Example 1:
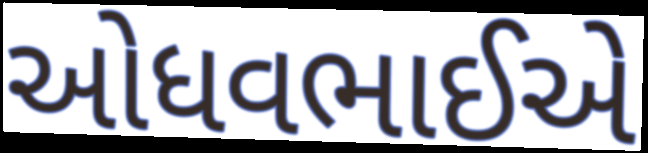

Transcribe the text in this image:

ઓધવભાઈએ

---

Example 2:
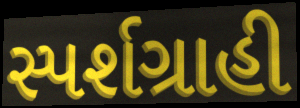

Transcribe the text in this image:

સ્પર્શગ્રાહી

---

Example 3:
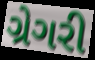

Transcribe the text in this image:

ગ્રેગરી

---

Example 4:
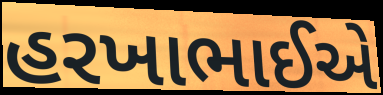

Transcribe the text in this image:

હરખાભાઈએ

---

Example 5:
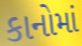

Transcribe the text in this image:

કાનોમાં